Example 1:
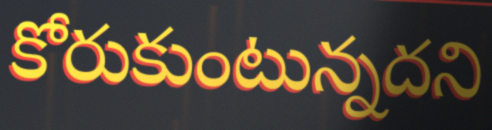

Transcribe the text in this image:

కోరుకుంటున్నదని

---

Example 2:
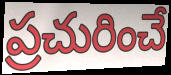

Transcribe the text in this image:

ప్రచురించే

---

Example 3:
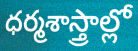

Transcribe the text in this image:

ధర్మశాస్త్రాల్లో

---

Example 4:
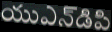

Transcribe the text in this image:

యుఎన్‌డిపి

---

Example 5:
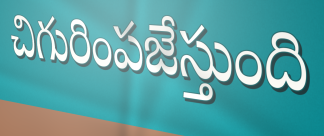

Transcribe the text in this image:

చిగురింపజేస్తుంది